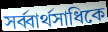
সর্ব্বার্থসাধিকে